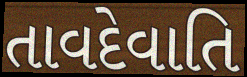
તાવદેવાતિ